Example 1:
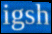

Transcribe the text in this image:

igsh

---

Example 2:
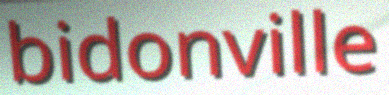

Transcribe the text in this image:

bidonville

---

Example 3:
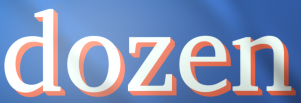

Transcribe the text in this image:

dozen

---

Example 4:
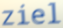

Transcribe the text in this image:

ziel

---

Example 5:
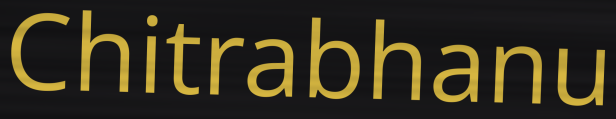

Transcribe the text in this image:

Chitrabhanu